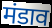
मंडाव